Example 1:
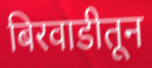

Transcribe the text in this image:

बिरवाडीतून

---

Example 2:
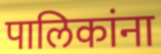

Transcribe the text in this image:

पालिकांना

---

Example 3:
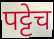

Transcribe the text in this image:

पट्टेच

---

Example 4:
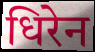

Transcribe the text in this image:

धिरेन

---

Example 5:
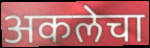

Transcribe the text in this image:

अकलेचा